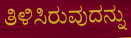
ತಿಳಿಸಿರುವುದನ್ನು